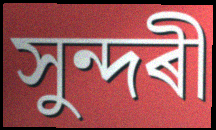
সুন্দৰী